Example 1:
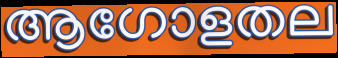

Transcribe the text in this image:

ആഗോളതല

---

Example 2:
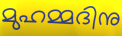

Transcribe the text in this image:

മുഹമ്മദിനു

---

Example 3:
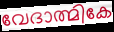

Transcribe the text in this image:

വേദാത്മികേ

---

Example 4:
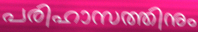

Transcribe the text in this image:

പരിഹാസത്തിനും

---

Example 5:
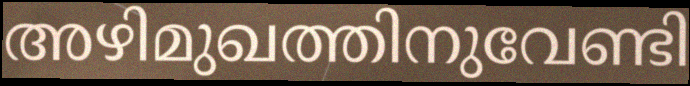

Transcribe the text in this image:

അഴിമുഖത്തിനുവേണ്ടി